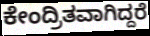
ಕೇಂದ್ರಿತವಾಗಿದ್ದರೆ